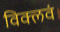
विक्लवं